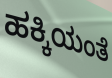
ಹಕ್ಕಿಯಂತೆ